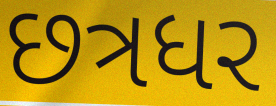
છત્રધર